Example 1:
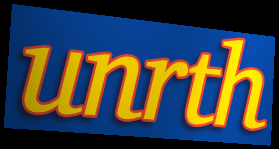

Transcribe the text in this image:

unrth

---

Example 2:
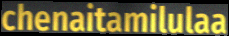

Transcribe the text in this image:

chenaitamilulaa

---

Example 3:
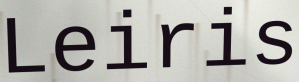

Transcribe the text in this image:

Leiris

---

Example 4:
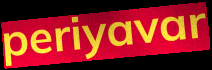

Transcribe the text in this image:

periyavar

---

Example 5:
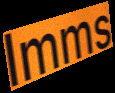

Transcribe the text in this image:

Imms